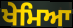
ਖੇਮਿਆ